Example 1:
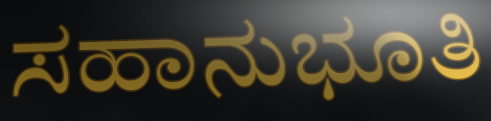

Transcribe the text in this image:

ಸಹಾನುಭೂತಿ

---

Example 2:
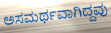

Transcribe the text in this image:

ಅಸಮರ್ಥವಾಗಿದ್ದವು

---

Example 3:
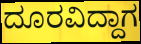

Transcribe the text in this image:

ದೂರವಿದ್ದಾಗ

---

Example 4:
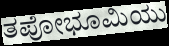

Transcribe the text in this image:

ತಪೋಭೂಮಿಯು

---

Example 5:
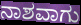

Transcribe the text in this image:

ನಾಶವಾಗು